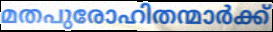
മതപുരോഹിതന്മാർക്ക്